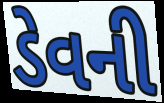
ડેવની